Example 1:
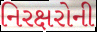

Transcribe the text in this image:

નિરક્ષરોની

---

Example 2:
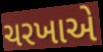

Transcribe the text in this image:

ચરખાએ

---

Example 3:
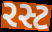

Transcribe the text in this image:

રસ્ટ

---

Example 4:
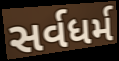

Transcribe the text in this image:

સર્વધર્મ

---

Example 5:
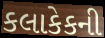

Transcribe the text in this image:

કલાકેકની